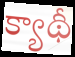
క్యాథీ